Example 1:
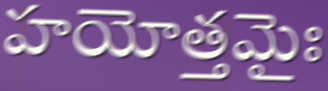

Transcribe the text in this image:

హయోత్తమైః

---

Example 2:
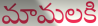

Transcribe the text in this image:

మామలకి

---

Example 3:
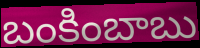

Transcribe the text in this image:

బంకింబాబు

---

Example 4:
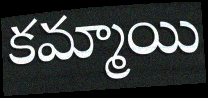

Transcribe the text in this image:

కమ్మాయి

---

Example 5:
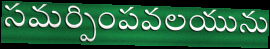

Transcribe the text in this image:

సమర్పింపవలయును